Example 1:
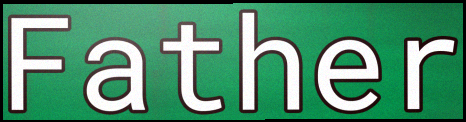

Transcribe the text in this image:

Father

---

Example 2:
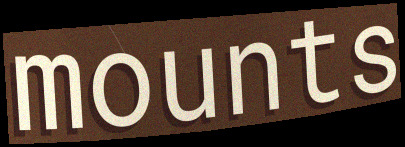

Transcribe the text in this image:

mounts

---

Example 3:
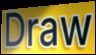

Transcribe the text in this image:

Draw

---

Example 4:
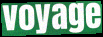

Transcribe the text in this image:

voyage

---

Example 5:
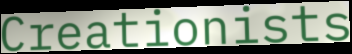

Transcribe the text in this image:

Creationists